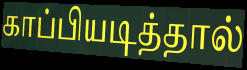
காப்பியடித்தால்